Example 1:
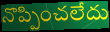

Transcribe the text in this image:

నొప్పించలేదు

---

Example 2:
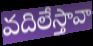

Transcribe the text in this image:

వదిలేస్తావా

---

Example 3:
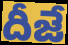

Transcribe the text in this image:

దీజే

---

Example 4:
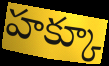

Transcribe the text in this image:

హక్కూ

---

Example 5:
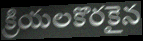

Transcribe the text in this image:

క్రియలకొరకైన